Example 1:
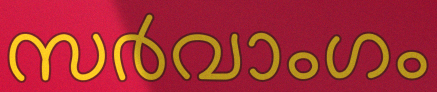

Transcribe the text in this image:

സർവാംഗം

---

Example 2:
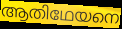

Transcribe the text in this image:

ആതിഥേയനെ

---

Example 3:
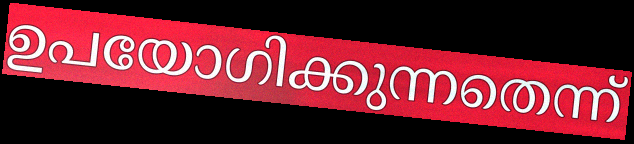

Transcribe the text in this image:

ഉപയോഗിക്കുന്നതെന്ന്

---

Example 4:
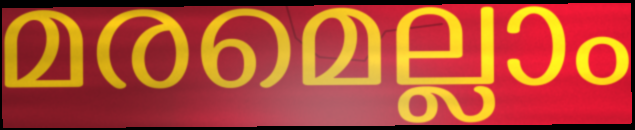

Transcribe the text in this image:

മരമെല്ലാം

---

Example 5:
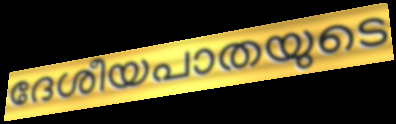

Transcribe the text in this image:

ദേശീയപാതയുടെ